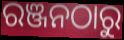
ରଞ୍ଜନଠାରୁ